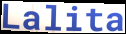
Lalita